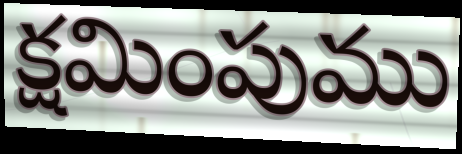
క్షమింపుము